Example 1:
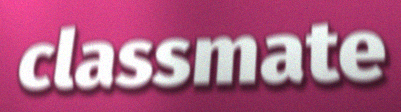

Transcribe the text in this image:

classmate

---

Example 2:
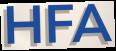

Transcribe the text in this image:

HFA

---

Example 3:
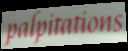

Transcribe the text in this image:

palpitations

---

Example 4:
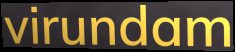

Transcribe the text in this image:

virundam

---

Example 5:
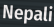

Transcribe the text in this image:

Nepali